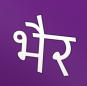
भैर